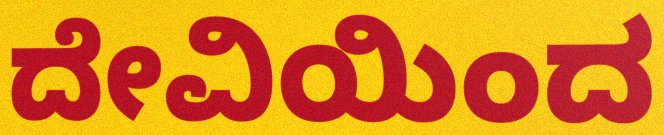
ದೇವಿಯಿಂದ